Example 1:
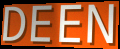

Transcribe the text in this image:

DEEN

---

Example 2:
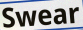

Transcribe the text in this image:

Swear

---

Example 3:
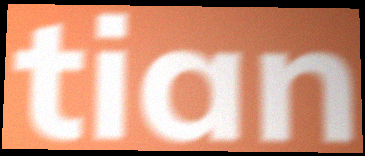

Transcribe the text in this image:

tian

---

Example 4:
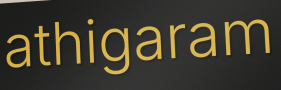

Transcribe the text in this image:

athigaram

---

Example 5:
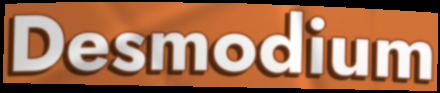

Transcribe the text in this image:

Desmodium